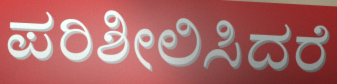
ಪರಿಶೀಲಿಸಿದರೆ